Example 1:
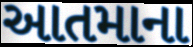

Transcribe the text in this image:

આતમાના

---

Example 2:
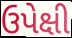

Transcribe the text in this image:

ઉપેક્ષી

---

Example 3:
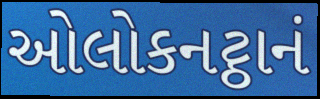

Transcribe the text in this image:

ઓલોકનટ્ઠાનં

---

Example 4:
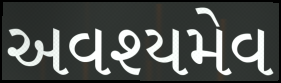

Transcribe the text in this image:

અવશ્યમેવ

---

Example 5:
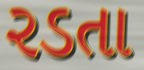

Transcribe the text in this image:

રડતા